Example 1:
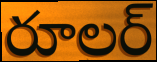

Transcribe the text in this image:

రూలర్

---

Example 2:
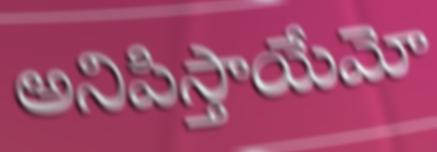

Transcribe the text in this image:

అనిపిస్తాయేమో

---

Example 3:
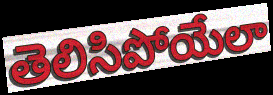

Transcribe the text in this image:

తెలిసిపోయేలా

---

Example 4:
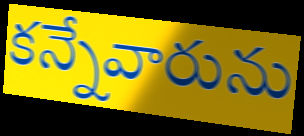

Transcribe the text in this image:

కన్నేవారును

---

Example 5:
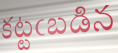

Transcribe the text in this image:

కట్టఁబడిన